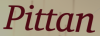
Pittan